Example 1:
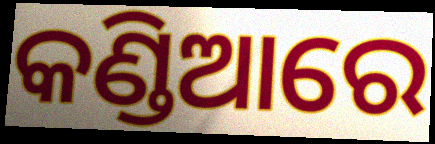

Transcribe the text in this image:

କଣ୍ଡିଆରେ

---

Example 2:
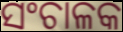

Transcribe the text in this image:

ସଂଚାଳକ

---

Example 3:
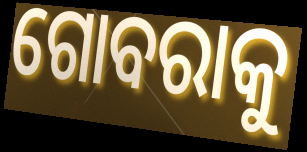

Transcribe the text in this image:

ଗୋବରାକୁ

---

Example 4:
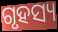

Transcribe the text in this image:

ଗୃହସ୍ୟ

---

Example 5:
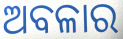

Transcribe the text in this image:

ଅବଳାର